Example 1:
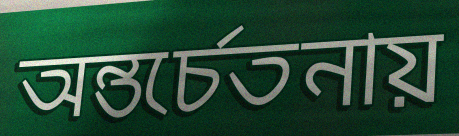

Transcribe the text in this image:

অন্তর্চেতনায়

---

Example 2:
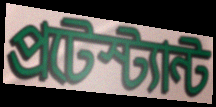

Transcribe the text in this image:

প্রটেস্ট্যান্ট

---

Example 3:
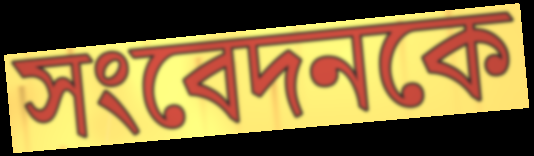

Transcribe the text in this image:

সংবেদনকে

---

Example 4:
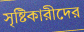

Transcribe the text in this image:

সৃষ্টিকারীদের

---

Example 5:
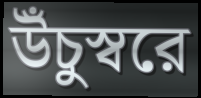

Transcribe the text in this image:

উঁচুস্বরে